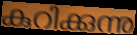
കുറിക്കുന്നു